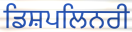
ਡਿਸ਼ਪਲਿਨਰੀ